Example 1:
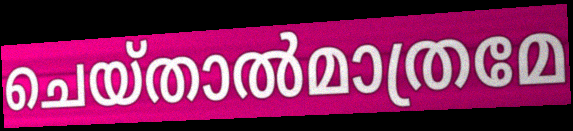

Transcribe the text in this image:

ചെയ്താൽമാത്രമേ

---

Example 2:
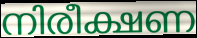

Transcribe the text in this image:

നിരീക്ഷണ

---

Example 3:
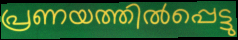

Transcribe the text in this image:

പ്രണയത്തിൽപ്പെട്ടു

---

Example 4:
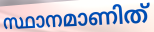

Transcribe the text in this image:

സ്ഥാനമാണിത്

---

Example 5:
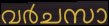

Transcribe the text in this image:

വർചസാ